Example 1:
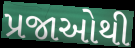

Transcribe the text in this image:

પ્રજાઓથી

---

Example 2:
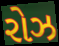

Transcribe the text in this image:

રોઝ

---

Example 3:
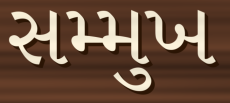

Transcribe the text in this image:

સમ્મુખ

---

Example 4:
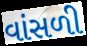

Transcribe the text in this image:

વાંસળી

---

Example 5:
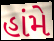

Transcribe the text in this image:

હાંમે